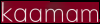
kaamam